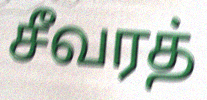
சீவரத்